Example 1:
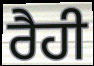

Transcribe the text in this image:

ਰੈਹੀ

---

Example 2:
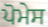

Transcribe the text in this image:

ਪੋਮੇਸ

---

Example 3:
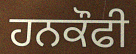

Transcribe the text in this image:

ਹਨਕੌਫੀ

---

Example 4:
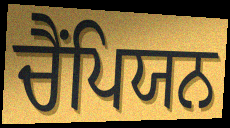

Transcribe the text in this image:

ਚੈੰਪਿਯਨ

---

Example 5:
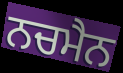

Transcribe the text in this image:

ਨਚਮੈਨ